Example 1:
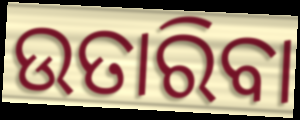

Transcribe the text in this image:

ଉତାରିବା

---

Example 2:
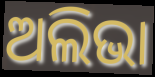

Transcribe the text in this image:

ଅଲିଭା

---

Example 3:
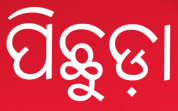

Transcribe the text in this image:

ପିଛୁଡ଼ା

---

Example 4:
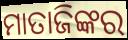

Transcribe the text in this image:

ମାତାଜିଙ୍କର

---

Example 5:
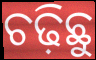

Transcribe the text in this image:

ଚଢ଼ିଛୁ